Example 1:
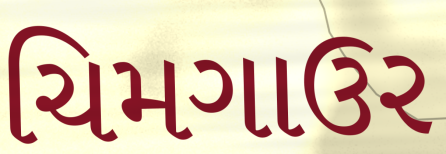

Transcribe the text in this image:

ચિમગાઉર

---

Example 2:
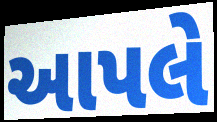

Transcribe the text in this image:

આપલે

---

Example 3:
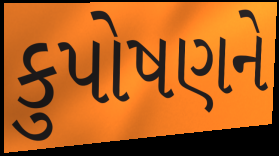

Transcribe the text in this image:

કુપોષણને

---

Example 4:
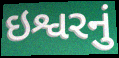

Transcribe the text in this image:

ઇશ્વરનું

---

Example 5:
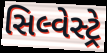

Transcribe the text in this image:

સિલ્વેસ્ટ્રે